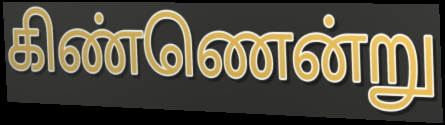
கிண்ணென்று